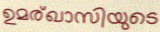
ഉമര്ഖാസിയുടെ